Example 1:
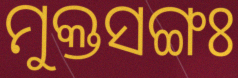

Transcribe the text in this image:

ମୁକ୍ତସଙ୍ଗଃ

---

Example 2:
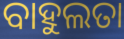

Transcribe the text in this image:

ବାହୁଲତା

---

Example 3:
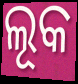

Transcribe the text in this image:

ଲୂକ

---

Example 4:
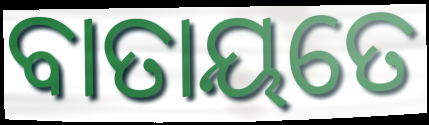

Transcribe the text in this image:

ବାତାୟତେ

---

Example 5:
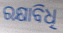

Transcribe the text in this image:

ରକ୍ଷାବିଧି